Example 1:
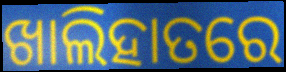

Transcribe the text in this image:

ଖାଲିହାତରେ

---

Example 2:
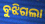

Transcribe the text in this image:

ବୁଝିଗଲା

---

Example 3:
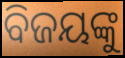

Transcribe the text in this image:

ବିଜୟଙ୍କୁ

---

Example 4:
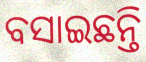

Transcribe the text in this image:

ବସାଇଛନ୍ତି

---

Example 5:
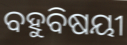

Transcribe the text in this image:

ବହୁବିଷୟୀ